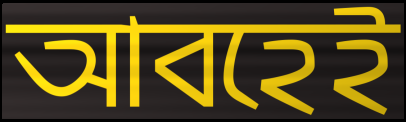
আবহেই